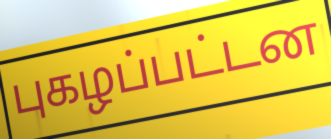
புகழப்பட்டன